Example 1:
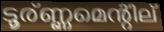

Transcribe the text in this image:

ടൂര്ണ്ണമെന്റില്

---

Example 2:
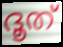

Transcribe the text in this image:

ദൂത്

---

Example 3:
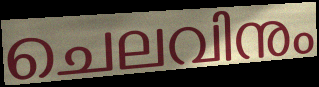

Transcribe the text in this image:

ചെലവിനും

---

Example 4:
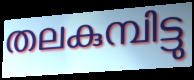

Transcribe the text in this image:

തലകുമ്പിട്ടു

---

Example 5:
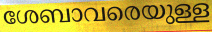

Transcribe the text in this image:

ശേബാവരെയുള്ള